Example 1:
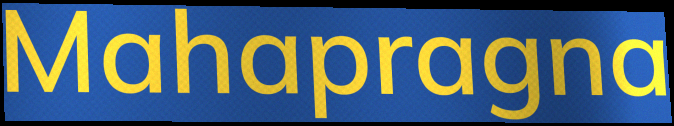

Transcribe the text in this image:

Mahapragna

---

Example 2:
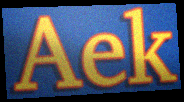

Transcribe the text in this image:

Aek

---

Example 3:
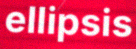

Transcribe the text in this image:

ellipsis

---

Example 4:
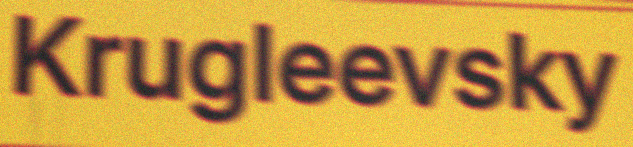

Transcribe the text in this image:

Krugleevsky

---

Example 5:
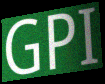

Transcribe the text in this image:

GPI